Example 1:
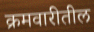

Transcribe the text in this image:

क्रमवारीतील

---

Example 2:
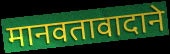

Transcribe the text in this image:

मानवतावादाने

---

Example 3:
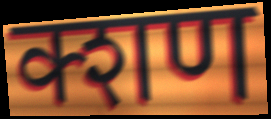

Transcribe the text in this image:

क्शण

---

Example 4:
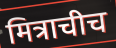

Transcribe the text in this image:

मित्राचीच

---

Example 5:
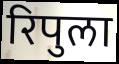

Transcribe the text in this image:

रिपुला